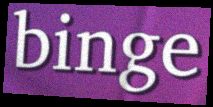
binge